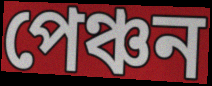
পেঞ্চন